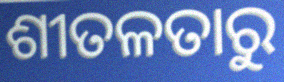
ଶୀତଳତାରୁ